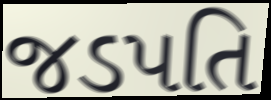
જડપતિ